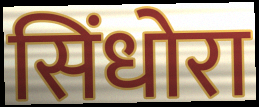
सिंधोरा